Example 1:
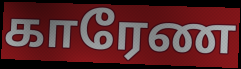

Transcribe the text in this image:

காரேண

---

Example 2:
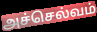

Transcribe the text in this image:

அச்செல்வம்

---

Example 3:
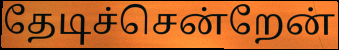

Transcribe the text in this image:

தேடிச்சென்றேன்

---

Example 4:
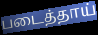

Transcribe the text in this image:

படைத்தாய்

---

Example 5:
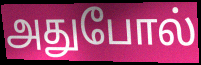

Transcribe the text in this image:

அதுபோல்